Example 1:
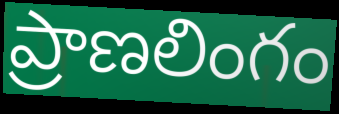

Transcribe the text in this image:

ప్రాణలింగం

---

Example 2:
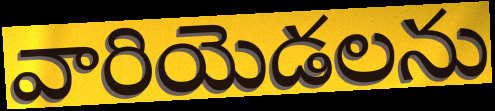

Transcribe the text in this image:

వారియెడలను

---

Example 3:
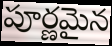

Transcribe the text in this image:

పూర్ణమైన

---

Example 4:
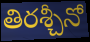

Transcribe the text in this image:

తిరశ్చీనో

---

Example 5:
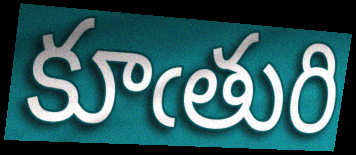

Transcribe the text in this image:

కూఁతురి